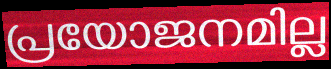
പ്രയോജനമില്ല